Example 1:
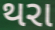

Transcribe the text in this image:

થરા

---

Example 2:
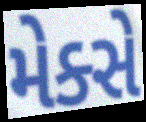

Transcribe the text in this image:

મેક્સે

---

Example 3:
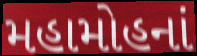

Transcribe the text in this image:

મહામોહનાં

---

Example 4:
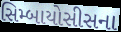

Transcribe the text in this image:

સિમ્બાયોસીસના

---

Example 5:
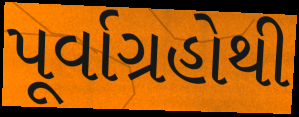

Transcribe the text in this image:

પૂર્વાગ્રહોથી